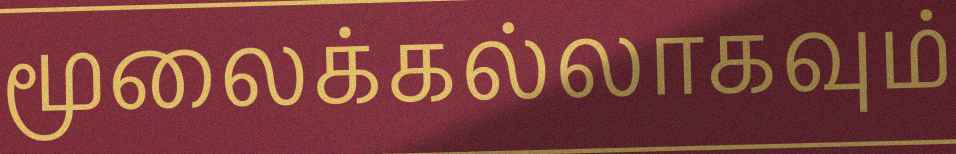
மூலைக்கல்லாகவும்